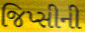
જિપ્સીની